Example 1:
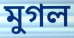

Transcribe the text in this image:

মুগল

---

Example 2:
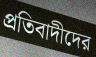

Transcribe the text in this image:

প্রতিবাদীদের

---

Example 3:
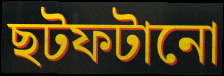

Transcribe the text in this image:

ছটফটানো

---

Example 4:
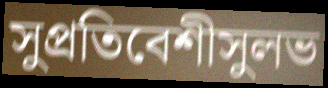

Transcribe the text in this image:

সুপ্রতিবেশীসুলভ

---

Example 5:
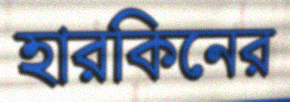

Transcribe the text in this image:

হারকিনের